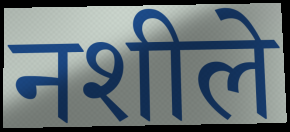
नशीले